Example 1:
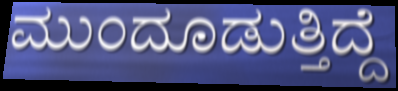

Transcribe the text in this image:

ಮುಂದೂಡುತ್ತಿದ್ದೆ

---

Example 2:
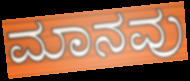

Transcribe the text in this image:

ಮಾನವು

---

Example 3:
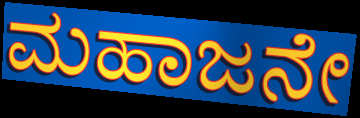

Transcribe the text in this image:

ಮಹಾಜನೇ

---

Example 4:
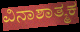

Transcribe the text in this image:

ವಿನಾಶಾತ್ಮಕ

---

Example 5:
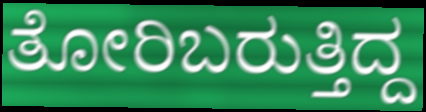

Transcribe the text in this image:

ತೋರಿಬರುತ್ತಿದ್ದ